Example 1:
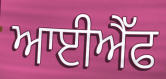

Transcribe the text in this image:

ਆਈਐੱਫ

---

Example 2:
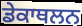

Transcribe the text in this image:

ਡੇਕਾਥਲਨ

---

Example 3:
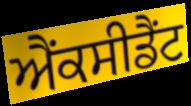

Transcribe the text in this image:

ਐਂਕਸੀਡੈਂਟ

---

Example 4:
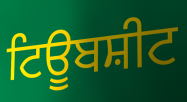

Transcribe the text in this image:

ਟਿਊਬਸ਼ੀਟ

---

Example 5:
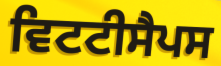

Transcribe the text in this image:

ਵਿਟਟੀਸੈਪਸ